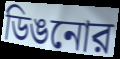
ডিঙনোর